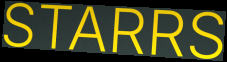
STARRS